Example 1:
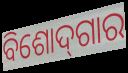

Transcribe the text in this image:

ବିଶୋଦ୍‌ଗାର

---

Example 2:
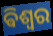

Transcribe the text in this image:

ଵିଶ୍ୱର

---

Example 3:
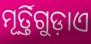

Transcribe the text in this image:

ମୂର୍ତ୍ତିଗୁଡ଼ାଏ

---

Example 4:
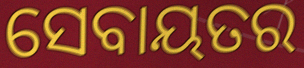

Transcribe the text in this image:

ସେବାୟତର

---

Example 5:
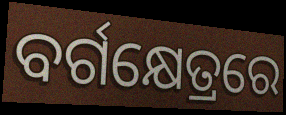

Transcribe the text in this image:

ବର୍ଗକ୍ଷେତ୍ରରେ